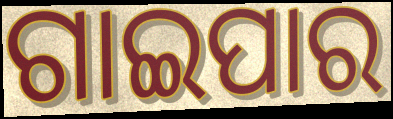
ଗାଇପାର